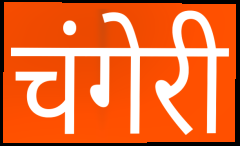
चंगेरी